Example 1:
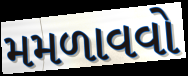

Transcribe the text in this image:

મમળાવવો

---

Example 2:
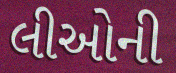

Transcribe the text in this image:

લીઓની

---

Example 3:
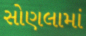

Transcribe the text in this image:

સોણલામાં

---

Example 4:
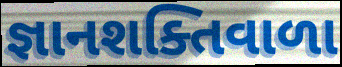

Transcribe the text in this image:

જ્ઞાનશક્તિવાળા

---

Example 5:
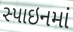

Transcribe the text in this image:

સ્પાઇનમાં